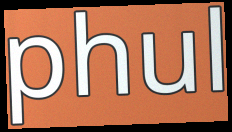
phul